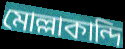
মোল্লাকান্দি